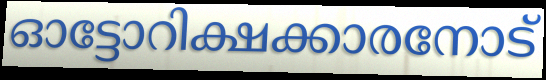
ഓട്ടോറിക്ഷക്കാരനോട്